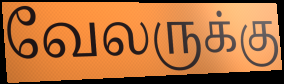
வேலருக்கு